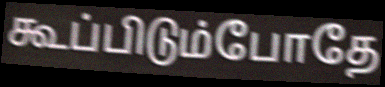
கூப்பிடும்போதே